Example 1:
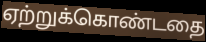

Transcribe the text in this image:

ஏற்றுக்கொண்டதை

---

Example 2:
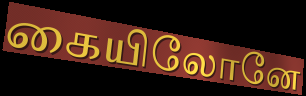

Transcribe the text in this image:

கையிலோனே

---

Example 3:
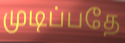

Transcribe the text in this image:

முடிப்பதே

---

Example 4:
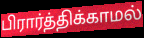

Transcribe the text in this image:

பிரார்த்திக்காமல்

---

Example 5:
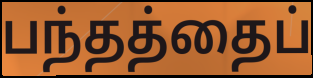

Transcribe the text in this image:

பந்தத்தைப்